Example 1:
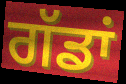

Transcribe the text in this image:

ਗੱਡਾਂ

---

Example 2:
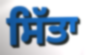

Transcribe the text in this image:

ਸਿੱਤਾ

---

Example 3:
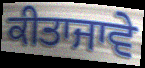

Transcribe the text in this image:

ਕੀਤਾਜਾਵੇ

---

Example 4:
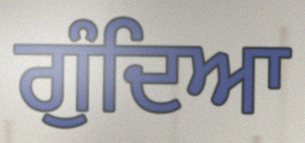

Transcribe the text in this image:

ਗੁੰਦਿਆ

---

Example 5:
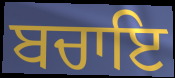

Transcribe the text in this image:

ਬਚਾਇ